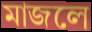
মাজলে